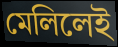
মেলিলেই